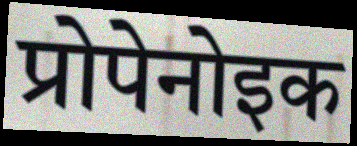
प्रोपेनोइक